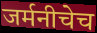
जर्मनीचेच